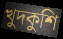
খুদকুশি